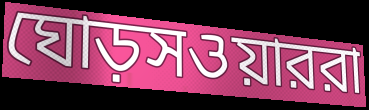
ঘোড়সওয়াররা